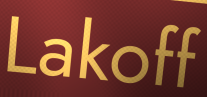
Lakoff